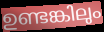
ഉണ്ടങ്കിലും